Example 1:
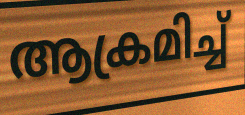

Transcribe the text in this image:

ആക്രമിച്ച്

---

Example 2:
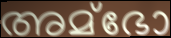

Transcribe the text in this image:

അമ്ഭോ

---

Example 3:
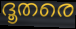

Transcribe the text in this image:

ദൂതരെ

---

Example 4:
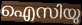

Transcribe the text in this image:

ഐസിയു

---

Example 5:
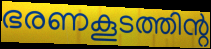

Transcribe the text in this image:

ഭരണകൂടത്തിന്റ